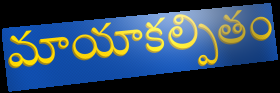
మాయాకల్పితం